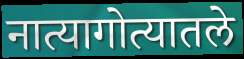
नात्यागोत्यातले